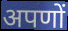
अपणों